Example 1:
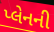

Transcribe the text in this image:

પ્લેનની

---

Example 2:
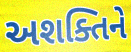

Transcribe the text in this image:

અશક્તિને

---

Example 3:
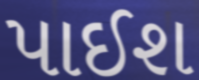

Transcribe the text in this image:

પાઈશ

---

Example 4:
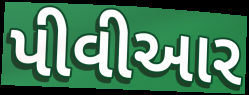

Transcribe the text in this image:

પીવીઆર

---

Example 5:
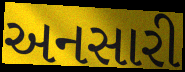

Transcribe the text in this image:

અનસારી